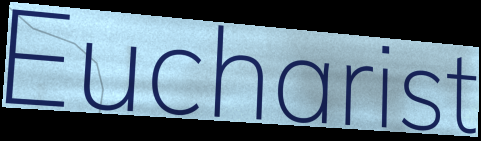
Eucharist